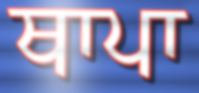
ਥਾਪਾ